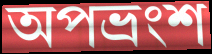
অপভ্ৰংশ